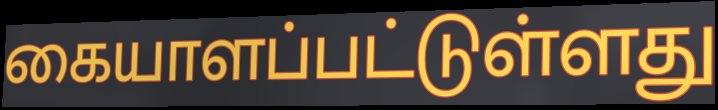
கையாளப்பட்டுள்ளது